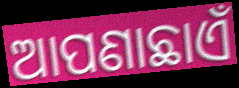
ଆପଣାଛାଏଁ